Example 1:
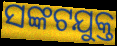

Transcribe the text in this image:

ସଙ୍କଟଯୁକ୍ତ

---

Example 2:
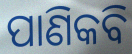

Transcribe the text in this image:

ପାଣିକବି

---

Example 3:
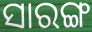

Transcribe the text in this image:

ସାରଙ୍ଗ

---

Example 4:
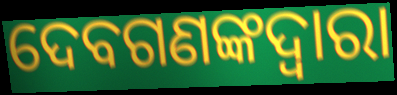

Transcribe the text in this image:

ଦେବଗଣଙ୍କଦ୍ୱାରା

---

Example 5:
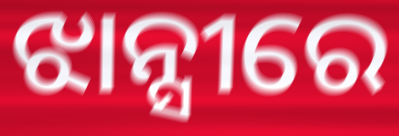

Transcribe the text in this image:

ଝାନ୍ସୀରେ